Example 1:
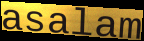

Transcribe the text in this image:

asalam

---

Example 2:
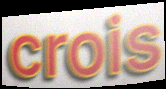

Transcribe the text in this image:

crois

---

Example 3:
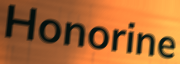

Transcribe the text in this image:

Honorine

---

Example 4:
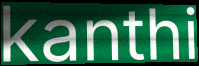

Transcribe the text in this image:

kanthi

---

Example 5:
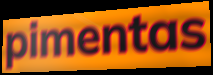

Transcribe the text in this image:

pimentas